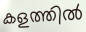
കളത്തിൽ